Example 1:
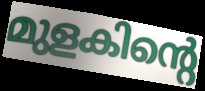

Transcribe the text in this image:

മുളകിന്റെ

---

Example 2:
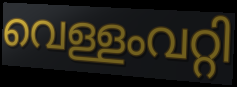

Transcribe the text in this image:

വെള്ളംവറ്റി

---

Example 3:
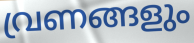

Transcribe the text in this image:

വ്രണങ്ങളും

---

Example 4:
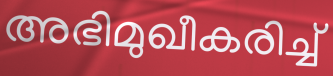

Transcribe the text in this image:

അഭിമുഖീകരിച്ച്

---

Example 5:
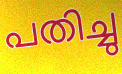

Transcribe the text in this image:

പതിച്ചു